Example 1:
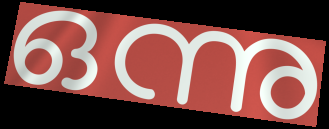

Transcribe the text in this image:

ഒന്നു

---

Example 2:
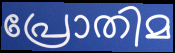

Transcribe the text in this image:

പ്രോതിമ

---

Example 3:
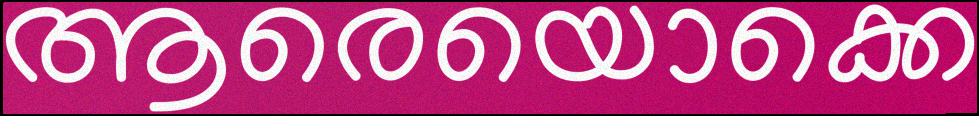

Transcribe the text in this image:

ആരെയൊക്കെ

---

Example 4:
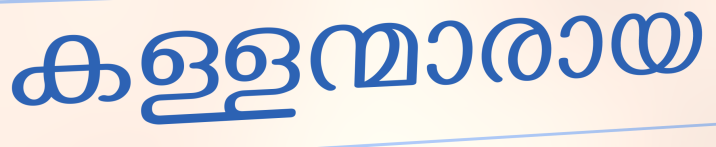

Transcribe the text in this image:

കള്ളന്മാരായ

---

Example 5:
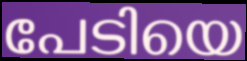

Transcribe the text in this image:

പേടിയെ